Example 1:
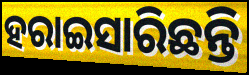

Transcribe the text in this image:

ହରାଇସାରିଛନ୍ତି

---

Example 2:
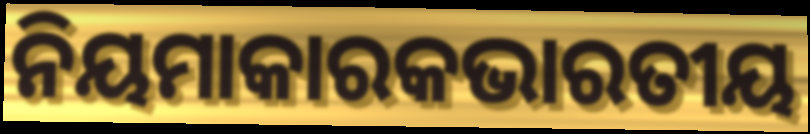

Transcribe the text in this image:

ନିୟମାକାରକଭାରତୀୟ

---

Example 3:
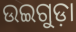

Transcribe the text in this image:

ଉଇଗୁଡ଼ା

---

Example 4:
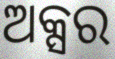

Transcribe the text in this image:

ଅକ୍ସର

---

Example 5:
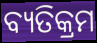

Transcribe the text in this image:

ବ୍ଯତିକ୍ରମ